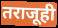
तराजूही